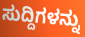
ಸುದ್ದಿಗಳನ್ನು